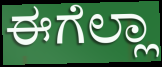
ಈಗೆಲ್ಲಾ